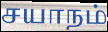
சயாநம்